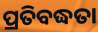
ପ୍ରତିବଦ୍ଧତା